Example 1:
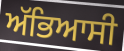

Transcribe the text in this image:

ਅੱਭਿਆਸੀ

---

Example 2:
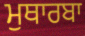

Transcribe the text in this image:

ਮੁਥਾਰਬਾ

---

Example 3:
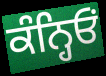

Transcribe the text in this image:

ਕੰਨ੍ਹਿਓਂ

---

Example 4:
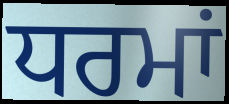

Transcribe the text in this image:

ਧਰਮਾਂ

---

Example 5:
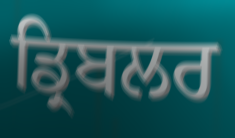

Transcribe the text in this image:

ਡ੍ਰਿਬਲਰ